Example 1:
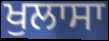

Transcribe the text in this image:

ਖੁਲਾਸਾ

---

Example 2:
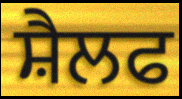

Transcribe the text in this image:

ਸ਼ੈਲਫ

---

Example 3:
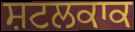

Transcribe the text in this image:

ਸ਼ਟਲਕਾਕ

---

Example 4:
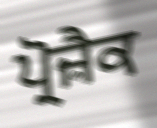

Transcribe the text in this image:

ਪ੍ਰੋਜ਼ੈਕ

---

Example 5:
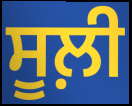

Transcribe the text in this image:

ਸੂਲ਼ੀ